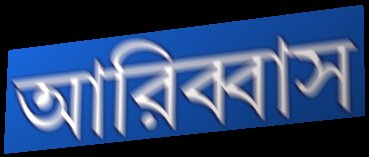
আরিব্বাস